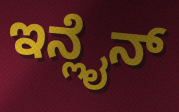
ಇನ್ಲೈನ್